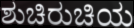
ಶುಚಿರುಚಿಯ